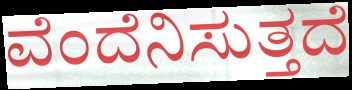
ವೆಂದೆನಿಸುತ್ತದೆ